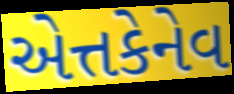
એત્તકેનેવ